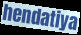
hendatiya